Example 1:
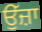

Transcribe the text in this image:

ਉੱਜ਼ਾ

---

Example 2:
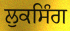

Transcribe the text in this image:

ਲੁਕਸਿੰਗ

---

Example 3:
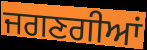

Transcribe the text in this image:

ਜਗਣਗੀਆਂ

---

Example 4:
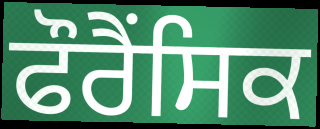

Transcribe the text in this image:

ਫੌਰੈਂਸਿਕ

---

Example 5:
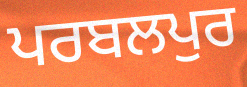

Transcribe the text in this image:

ਪਰਬਲਪੁਰ